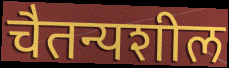
चैतन्यशील